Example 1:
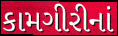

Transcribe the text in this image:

કામગીરીનાં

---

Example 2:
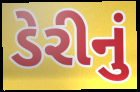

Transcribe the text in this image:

ડેરીનું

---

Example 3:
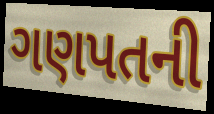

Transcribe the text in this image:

ગણપતની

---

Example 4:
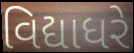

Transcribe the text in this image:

વિદ્યાધરે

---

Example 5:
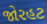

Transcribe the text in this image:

જોરહટ